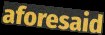
aforesaid